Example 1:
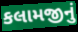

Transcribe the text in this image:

કલામજીનું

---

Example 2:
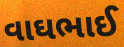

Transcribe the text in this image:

વાઘભાઈ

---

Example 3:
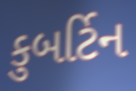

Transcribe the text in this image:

કુબર્ટિન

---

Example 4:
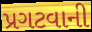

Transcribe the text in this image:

પ્રગટવાની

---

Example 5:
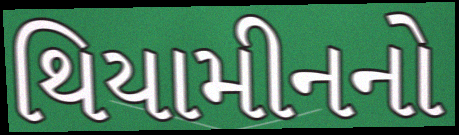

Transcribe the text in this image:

થિયામીનનો